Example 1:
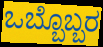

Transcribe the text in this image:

ಒಬ್ಬೊಬ್ಬರ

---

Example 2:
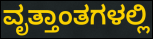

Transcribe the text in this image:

ವೃತ್ತಾಂತಗಳಲ್ಲಿ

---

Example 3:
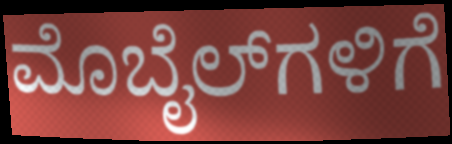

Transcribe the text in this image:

ಮೊಬೈಲ್‌ಗಳಿಗೆ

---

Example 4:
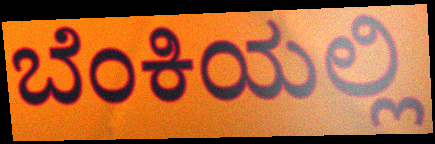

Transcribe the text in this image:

ಬೆಂಕಿಯಲ್ಲಿ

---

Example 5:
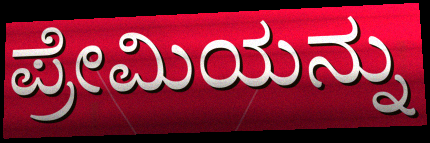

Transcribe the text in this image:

ಪ್ರೇಮಿಯನ್ನು